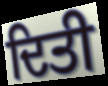
ਦਿਤੀ